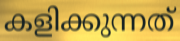
കളിക്കുന്നത്